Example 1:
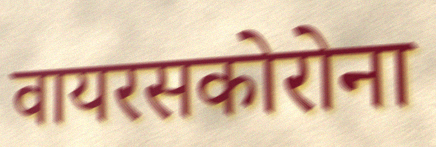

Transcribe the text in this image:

वायरसकोरोना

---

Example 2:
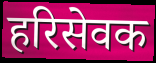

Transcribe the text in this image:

हरिसेवक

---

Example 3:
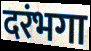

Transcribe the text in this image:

दरंभगा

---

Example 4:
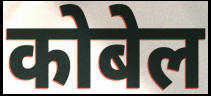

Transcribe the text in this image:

कोबेल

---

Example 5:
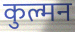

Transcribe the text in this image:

कुल्मन